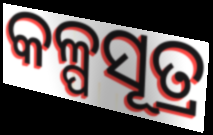
କଳ୍ପସୂତ୍ର